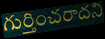
గుర్తించరాదని